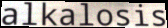
alkalosis